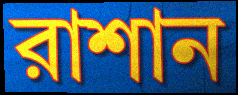
রাশান